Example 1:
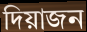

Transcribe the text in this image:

দিয়াজন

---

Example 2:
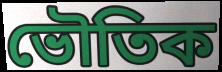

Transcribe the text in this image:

ভৌতিক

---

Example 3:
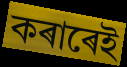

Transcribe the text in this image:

কৰাৰেই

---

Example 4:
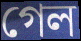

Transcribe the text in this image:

গেল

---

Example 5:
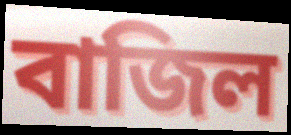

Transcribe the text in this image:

বাজিল